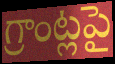
గ్రాంట్లపై